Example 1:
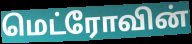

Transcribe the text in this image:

மெட்ரோவின்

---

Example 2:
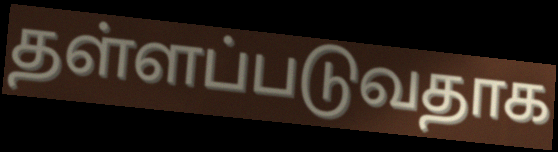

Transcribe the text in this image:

தள்ளப்படுவதாக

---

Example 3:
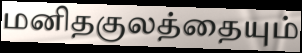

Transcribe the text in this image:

மனிதகுலத்தையும்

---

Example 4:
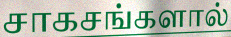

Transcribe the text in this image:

சாகசங்களால்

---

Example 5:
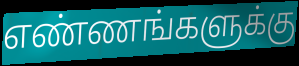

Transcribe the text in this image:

எண்ணங்களுக்கு